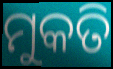
ମୁକତି